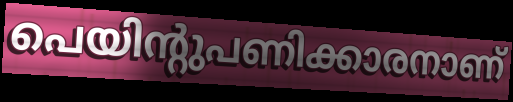
പെയിന്റുപണിക്കാരനാണ്